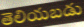
తెలియబడు